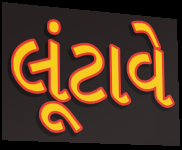
લૂંટાવે